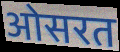
ओसरत